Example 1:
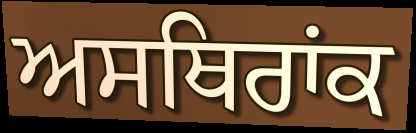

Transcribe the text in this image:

ਅਸਥਿਰਾਂਕ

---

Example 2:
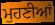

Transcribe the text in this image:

ਮੁਹਣੀਆਂ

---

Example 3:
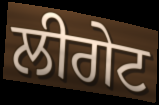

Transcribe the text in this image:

ਲੀਗੇਟ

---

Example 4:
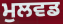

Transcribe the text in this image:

ਮੁਲਵਡ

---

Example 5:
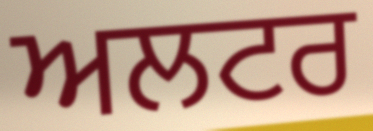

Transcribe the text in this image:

ਅਲਟਰ